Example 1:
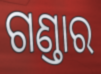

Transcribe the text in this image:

ଗଣ୍ଡାର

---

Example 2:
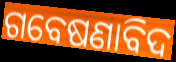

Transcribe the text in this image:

ଗବେଷଣାବିଦ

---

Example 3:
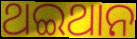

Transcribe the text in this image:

ଥଇଥାନ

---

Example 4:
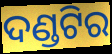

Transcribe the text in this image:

ଦଣ୍ଡଟିର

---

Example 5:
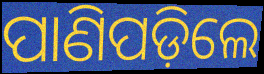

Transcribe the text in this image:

ପାଣିପଡ଼ିଲେ